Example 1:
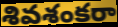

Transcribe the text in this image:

శివశంకరా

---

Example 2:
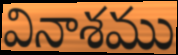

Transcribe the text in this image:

వినాశము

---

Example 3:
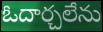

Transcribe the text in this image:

ఓదార్చలేను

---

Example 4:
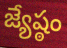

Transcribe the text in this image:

జ్యేష్ఠం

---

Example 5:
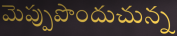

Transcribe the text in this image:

మెప్పుపొందుచున్న